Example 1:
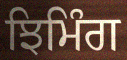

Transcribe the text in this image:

ਝਿਮਿੰਗ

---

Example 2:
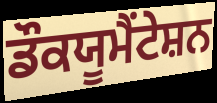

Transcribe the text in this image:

ਡੌਕਯੂਮੈਂਟੇਸ਼ਨ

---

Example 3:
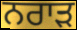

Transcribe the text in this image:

ਨਰਾੜ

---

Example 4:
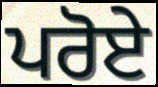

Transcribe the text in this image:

ਪਰੋਏ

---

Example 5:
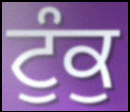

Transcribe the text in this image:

ਟੁੰਕੁ